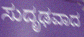
ಸುದೃಢವಾದ